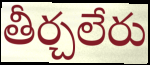
తీర్చలేరు